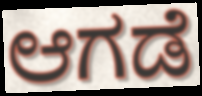
ಆಗಡೆ